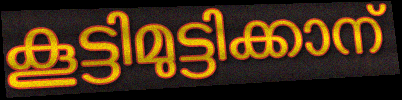
കൂട്ടിമുട്ടിക്കാന്